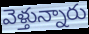
వెళ్తున్నారు